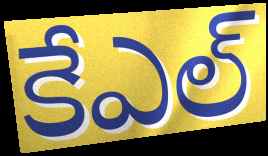
కేఎల్